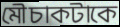
মৌচাকটাকে